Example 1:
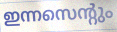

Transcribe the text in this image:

ഇന്നസെന്റും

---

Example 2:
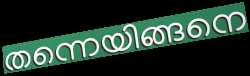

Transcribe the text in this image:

തന്നെയിങ്ങനെ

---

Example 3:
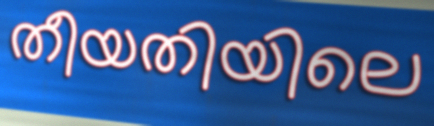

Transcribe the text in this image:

തീയതിയിലെ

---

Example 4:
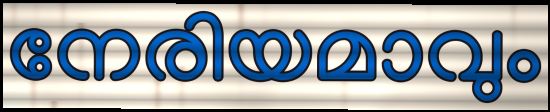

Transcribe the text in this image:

നേരിയമാവും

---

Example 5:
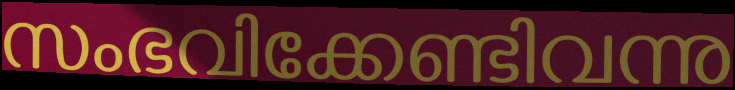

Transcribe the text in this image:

സംഭവിക്കേണ്ടിവന്നു